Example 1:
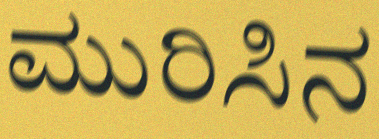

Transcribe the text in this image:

ಮುರಿಸಿನ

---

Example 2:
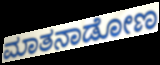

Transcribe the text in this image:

ಮಾತನಾಡೋಣ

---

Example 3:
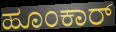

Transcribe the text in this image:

ಹೂಂಕಾರ್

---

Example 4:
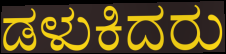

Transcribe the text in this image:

ಡಳುಕಿದರು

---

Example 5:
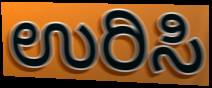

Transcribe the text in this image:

ಉರಿಸಿ